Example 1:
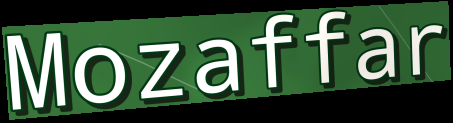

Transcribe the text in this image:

Mozaffar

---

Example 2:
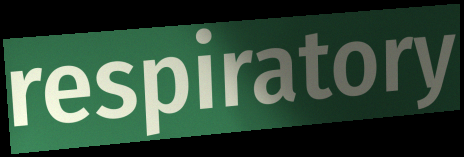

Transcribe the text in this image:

respiratory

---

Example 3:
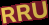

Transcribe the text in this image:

RRU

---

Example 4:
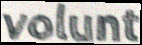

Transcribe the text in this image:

volunt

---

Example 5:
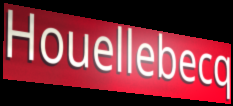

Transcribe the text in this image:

Houellebecq